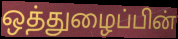
ஒத்துழைப்பின்